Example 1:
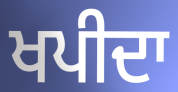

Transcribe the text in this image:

ਖਪੀਦਾ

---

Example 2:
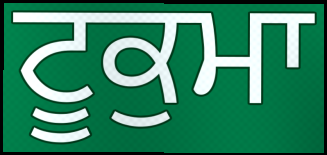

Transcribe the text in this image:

ਟੂਕੁਮਾ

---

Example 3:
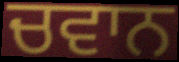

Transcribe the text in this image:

ਚਵਾਨ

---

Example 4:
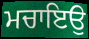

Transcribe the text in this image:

ਮਚਾਇਉ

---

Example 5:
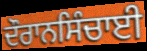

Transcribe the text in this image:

ਦੌਰਾਨਸਿੰਚਾਈ